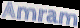
Amram